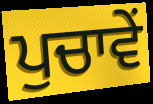
ਪੁਚਾਵੇਂ